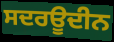
ਸਦਰਊਦੀਨ